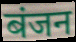
बंजन